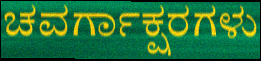
ಚವರ್ಗಾಕ್ಷರಗಳು